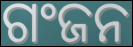
ଗଂଜନ